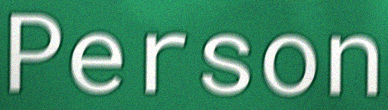
Person